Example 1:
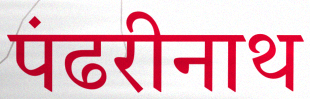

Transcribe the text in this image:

पंढरीनाथ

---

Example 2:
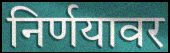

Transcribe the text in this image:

निर्णयावर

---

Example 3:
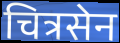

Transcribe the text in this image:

चित्रसेन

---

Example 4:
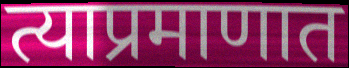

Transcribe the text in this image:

त्याप्रमाणात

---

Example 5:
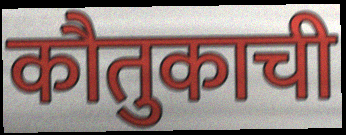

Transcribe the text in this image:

कौतुकाची